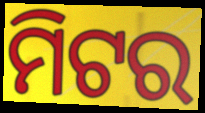
ମିଟର